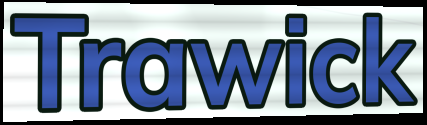
Trawick